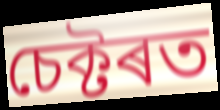
চেক্টৰত